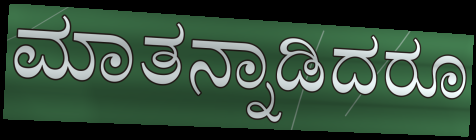
ಮಾತನ್ನಾಡಿದರೂ